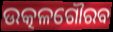
ଉତ୍କଳଗୌରବ